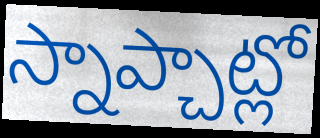
స్నాప్చాట్లో